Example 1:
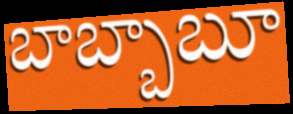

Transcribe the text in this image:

బాబ్బాబూ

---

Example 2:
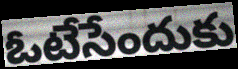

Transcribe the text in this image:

ఓటేసేందుకు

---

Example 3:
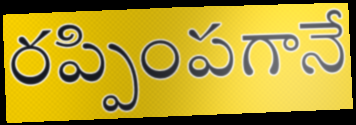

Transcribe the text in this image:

రప్పింపగానే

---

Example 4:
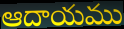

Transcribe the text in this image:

ఆదాయము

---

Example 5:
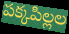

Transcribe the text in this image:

పక్కపిల్లల